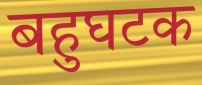
बहुघटक